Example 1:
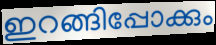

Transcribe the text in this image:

ഇറങ്ങിപ്പോക്കും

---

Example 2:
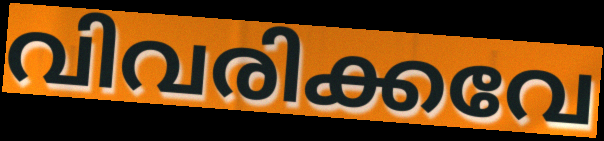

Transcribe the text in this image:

വിവരിക്കവേ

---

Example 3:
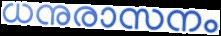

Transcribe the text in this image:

ധനുരാസനം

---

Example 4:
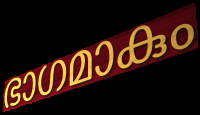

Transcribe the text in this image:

ഭാഗമാകും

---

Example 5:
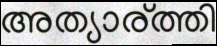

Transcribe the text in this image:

അത്യാര്ത്തി